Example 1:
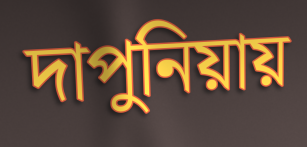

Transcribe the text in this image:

দাপুনিয়ায়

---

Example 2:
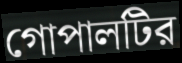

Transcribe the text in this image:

গোপালটির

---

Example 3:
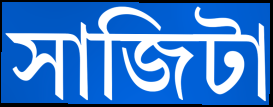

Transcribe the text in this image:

সাজিটা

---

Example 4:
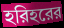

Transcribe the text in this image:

হরিহরের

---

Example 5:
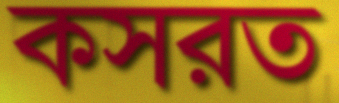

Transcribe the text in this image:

কসরত